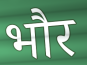
भौर